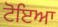
ਟੋਇਆ